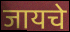
जायचे